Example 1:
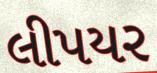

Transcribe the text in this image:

લીપયર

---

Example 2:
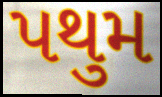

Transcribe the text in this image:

પથુમ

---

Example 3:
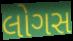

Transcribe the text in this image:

લોગસ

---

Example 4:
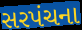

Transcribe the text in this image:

સરપંચના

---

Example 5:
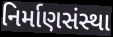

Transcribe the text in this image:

નિર્માણસંસ્થા